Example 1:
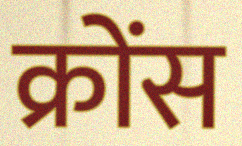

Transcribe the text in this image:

क्रोंस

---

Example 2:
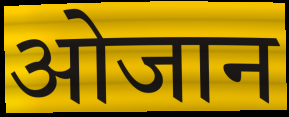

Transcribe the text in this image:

ओजान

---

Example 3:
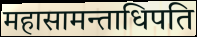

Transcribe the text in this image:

महासामन्ताधिपति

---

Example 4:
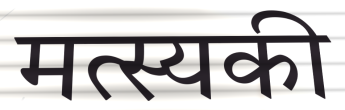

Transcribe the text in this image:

मत्स्यकी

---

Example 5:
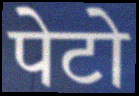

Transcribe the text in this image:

पेटो